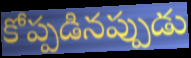
కోప్పడినప్పుడు